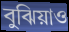
বুঝিয়াও